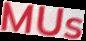
MUs